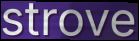
strove